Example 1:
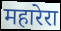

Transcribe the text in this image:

महारेरा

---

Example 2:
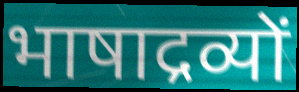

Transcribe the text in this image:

भाषाद्रव्यों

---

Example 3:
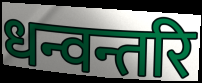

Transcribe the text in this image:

धन्वन्तरि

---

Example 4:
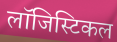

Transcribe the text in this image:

लॉजिस्टिकल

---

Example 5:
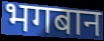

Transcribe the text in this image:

भगबान